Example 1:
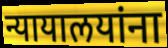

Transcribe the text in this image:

न्यायालयांना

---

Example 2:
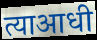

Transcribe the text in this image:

त्याआधी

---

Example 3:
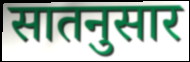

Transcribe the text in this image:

सातनुसार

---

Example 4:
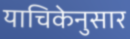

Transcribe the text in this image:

याचिकेनुसार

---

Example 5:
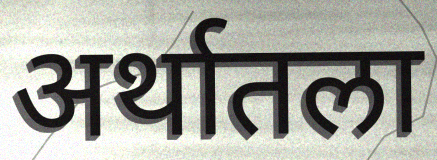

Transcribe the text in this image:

अर्थातला